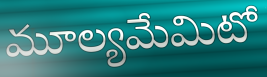
మూల్యమేమిటో